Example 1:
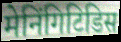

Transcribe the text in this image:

मेनिंगिटिडिस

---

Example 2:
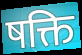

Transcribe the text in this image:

षक्ति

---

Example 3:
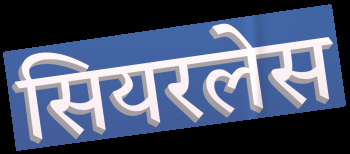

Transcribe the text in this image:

सियरलेस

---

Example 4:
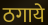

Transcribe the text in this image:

ठगाये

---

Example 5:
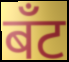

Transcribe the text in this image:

बँट